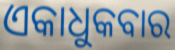
ଏକାଧୁକବାର